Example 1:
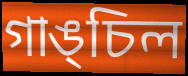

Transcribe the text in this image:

গাঙ্‌চিল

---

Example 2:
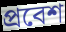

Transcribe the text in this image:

প্রবেশ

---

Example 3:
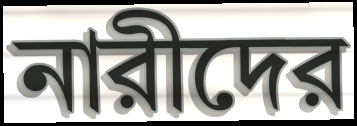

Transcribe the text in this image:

নারীদের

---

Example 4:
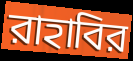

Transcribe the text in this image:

রাহাবির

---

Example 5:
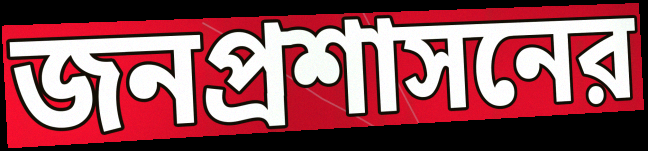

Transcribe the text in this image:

জনপ্রশাসনের